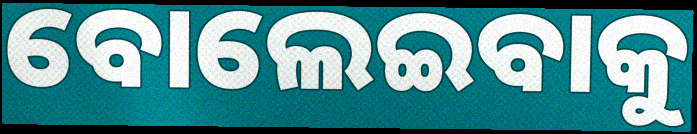
ବୋଲେଇବାକୁ